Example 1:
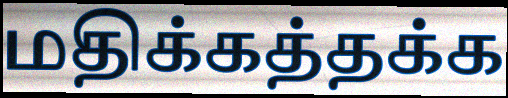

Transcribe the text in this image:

மதிக்கத்தக்க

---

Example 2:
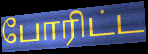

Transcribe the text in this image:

போரிட்ட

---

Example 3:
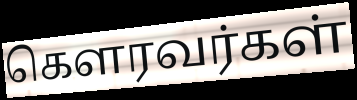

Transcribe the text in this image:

கெளரவர்கள்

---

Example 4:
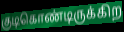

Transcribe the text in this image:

குடிகொண்டிருக்கிற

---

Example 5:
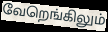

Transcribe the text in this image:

வேறெங்கிலும்